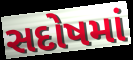
સદોષમાં